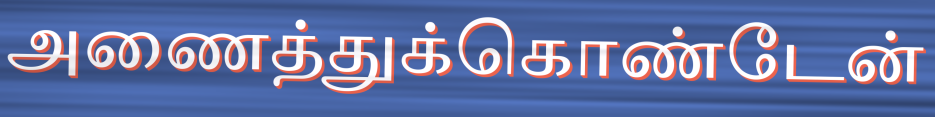
அணைத்துக்கொண்டேன்